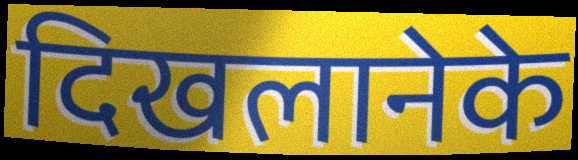
दिखलानेके